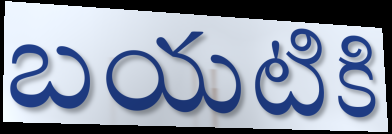
బయటికి